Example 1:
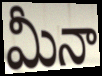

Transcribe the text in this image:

మీనా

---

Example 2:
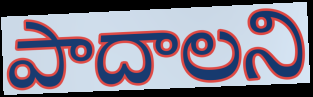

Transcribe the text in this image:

పాదాలని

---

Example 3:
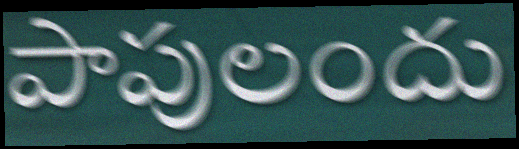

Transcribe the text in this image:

పాపులందు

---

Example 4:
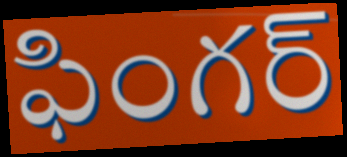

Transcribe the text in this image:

ఫింగర్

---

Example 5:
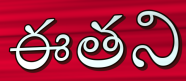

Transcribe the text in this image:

ఈతని